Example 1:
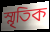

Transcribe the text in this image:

স্মৃতিক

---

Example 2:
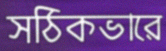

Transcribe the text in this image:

সঠিকভাৱে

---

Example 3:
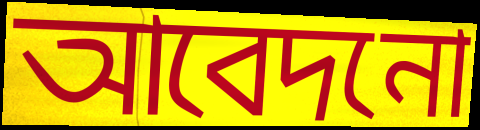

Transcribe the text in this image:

আবেদনো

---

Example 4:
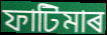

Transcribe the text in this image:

ফাটিমাৰ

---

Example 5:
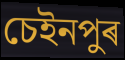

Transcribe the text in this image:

চেইনপুৰ